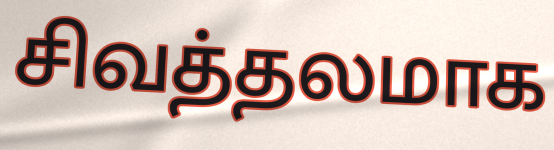
சிவத்தலமாக